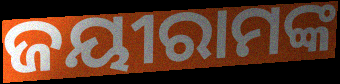
ଜୟୀରାମଙ୍କ